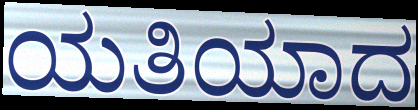
ಯತಿಯಾದ